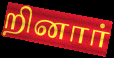
றினார்